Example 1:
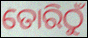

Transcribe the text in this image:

ତୋରିଠୁଁ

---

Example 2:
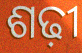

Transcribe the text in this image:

ଶଢ଼ୀ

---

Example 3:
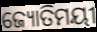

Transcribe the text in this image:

ଜ୍ୟୋତିମୟୀ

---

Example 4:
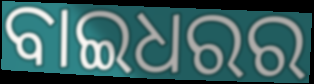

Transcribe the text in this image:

ବାଇଧରର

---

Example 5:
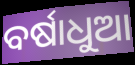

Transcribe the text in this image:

ବର୍ଷାଧୁଆ